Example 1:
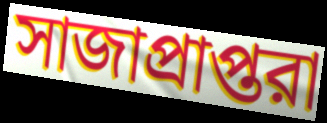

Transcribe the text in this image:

সাজাপ্রাপ্তরা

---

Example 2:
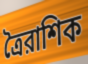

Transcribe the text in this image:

ত্রৈরাশিক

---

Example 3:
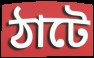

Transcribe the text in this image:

ঠাটে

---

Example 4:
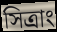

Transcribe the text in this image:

সিত্রাং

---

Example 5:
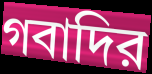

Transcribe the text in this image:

গবাদির